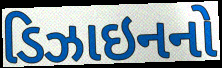
ડિઝાઇનનો